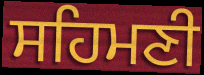
ਸਹਿਮਣੀ